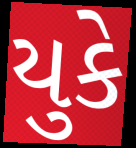
યુકે